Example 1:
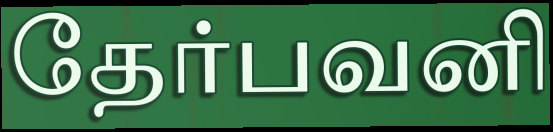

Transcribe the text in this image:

தேர்பவனி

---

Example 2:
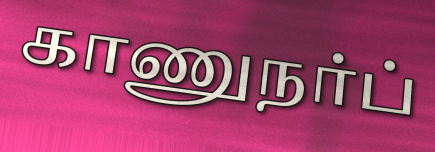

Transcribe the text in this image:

காணுநர்ப்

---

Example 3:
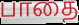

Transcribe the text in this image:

பாதை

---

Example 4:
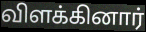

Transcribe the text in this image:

விளக்கினார்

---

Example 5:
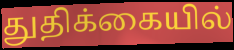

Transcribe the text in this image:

துதிக்கையில்